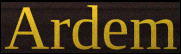
Ardem